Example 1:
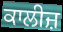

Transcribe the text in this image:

ਕਾਲੀਜ਼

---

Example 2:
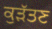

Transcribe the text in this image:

ਕੁੜੱਤਣ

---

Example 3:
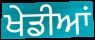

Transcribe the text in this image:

ਖੇਡੀਆਂ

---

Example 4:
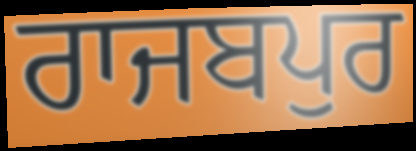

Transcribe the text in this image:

ਰਾਜਬਪੁਰ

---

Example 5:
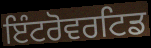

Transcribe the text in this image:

ਇੰਟਰੋਵਰਟਿਡ